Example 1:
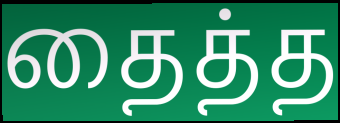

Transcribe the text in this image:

தைத்த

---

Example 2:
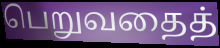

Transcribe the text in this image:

பெறுவதைத்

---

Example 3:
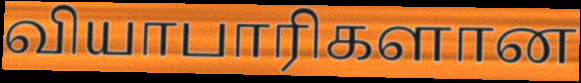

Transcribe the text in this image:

வியாபாரிகளான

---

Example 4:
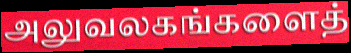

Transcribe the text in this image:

அலுவலகங்களைத்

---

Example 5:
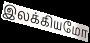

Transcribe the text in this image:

இலக்கியமோ